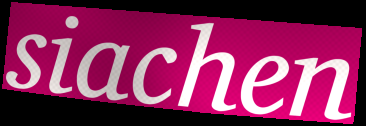
siachen